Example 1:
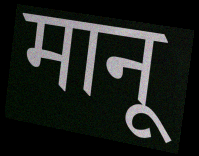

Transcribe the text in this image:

मानू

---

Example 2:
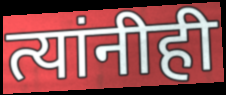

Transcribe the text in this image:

त्यांनीही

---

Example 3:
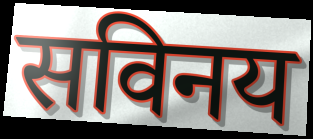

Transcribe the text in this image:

सविनय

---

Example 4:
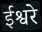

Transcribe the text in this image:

ईश्वरे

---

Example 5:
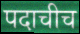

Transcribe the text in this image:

पदाचीच